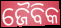
ଜୈବିକ